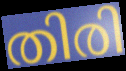
തിരി